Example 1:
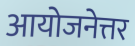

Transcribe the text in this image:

आयोजनेत्तर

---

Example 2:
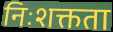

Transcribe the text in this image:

निःशक्तता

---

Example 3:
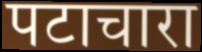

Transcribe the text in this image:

पटाचारा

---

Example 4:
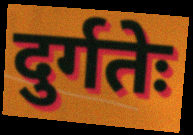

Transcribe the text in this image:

दुर्गतेः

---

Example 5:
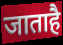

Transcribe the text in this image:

जाताहै